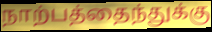
நாற்பத்தைந்துக்கு